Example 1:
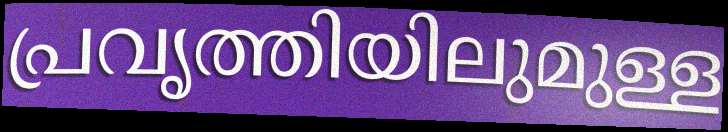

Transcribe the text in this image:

പ്രവൃത്തിയിലുമുള്ള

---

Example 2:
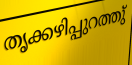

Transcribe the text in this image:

തൃക്കഴിപ്പുറത്തു്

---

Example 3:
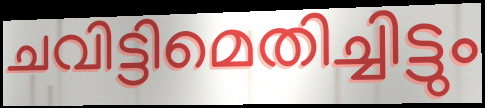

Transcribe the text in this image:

ചവിട്ടിമെതിച്ചിട്ടും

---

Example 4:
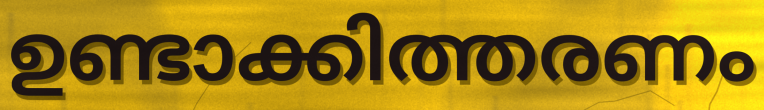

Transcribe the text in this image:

ഉണ്ടാക്കിത്തരണം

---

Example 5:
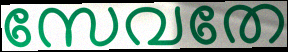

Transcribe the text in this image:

സേവതേ